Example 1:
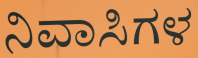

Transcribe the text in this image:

ನಿವಾಸಿಗಳ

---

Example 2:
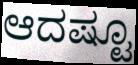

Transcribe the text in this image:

ಆದಷ್ಟೂ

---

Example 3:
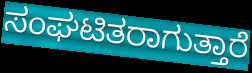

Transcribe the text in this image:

ಸಂಘಟಿತರಾಗುತ್ತಾರೆ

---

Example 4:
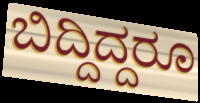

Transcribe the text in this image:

ಬಿದ್ದಿದ್ದರೂ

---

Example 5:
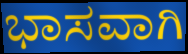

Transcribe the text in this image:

ಭಾಸವಾಗಿ